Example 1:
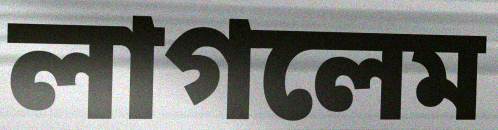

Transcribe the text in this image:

লাগলেম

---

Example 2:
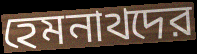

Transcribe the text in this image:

হেমনাথদের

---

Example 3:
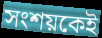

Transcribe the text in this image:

সংশয়কেই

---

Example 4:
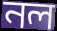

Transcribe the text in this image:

নল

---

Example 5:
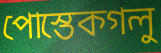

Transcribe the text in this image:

পোস্তেকগলু